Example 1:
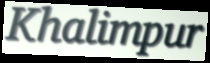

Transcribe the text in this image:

Khalimpur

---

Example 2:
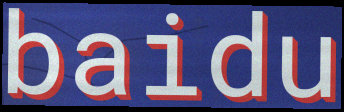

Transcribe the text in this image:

baidu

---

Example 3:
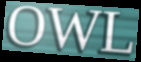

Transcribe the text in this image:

OWL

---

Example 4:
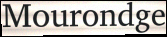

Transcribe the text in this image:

Mourondge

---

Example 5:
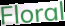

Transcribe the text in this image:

Floral